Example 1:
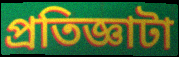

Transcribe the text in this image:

প্রতিজ্ঞাটা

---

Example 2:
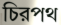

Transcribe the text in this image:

চিরপথ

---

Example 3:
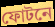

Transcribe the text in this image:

ফোটনে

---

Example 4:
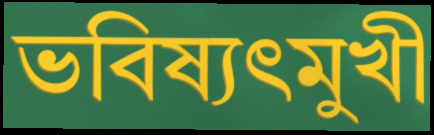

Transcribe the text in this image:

ভবিষ্যৎমুখী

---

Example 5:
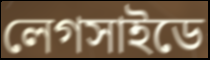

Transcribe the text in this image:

লেগসাইডে